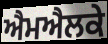
ਐਮਐਲਕੇ